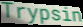
Trypsin